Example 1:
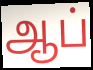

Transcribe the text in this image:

ஆப்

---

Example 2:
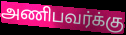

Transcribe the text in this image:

அணிபவர்க்கு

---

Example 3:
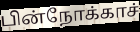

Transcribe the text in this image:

பின்நோக்காச்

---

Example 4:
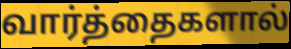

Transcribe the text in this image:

வார்த்தைகளால்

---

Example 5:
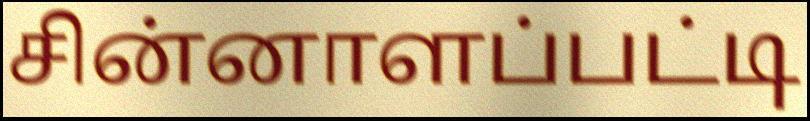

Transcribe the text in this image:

சின்னாளப்பட்டி